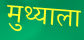
मुथ्याला